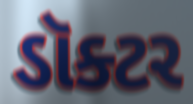
ડૉક્ટર